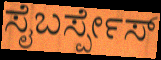
ಸೈಬರ್ಸ್ಪೇಸ್